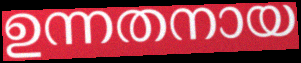
ഉന്നതനായ